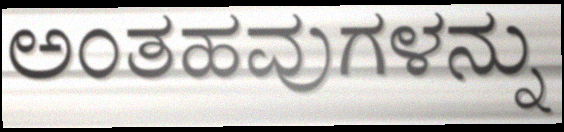
ಅಂತಹವುಗಳನ್ನು